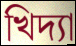
খিদ্যা